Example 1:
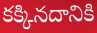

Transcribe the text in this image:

కక్కినదానికి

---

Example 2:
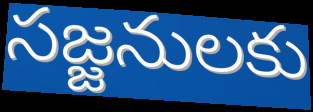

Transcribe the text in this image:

సజ్జనులకు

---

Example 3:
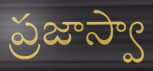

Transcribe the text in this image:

ప్రజాస్వా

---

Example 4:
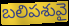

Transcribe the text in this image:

బలిపశువై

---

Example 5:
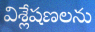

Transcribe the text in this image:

విశ్లేషణలను